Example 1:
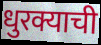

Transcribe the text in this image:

धुरक्याची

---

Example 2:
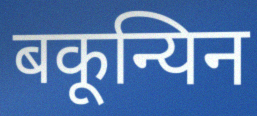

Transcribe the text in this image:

बकून्यिन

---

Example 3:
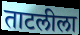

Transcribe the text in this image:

ताटलीला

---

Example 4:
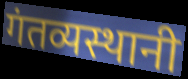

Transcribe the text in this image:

गंतव्यस्थानी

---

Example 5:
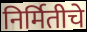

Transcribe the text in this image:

निर्मितीचे